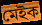
মেইক